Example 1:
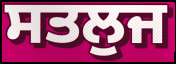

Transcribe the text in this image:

ਸਤਲੁਜ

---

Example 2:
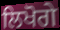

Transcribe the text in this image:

ਲਿਖੋਗੇ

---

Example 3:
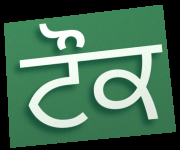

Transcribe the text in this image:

ਟੌਕ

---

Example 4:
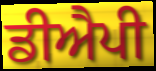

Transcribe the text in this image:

ਡੀਐਪੀ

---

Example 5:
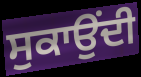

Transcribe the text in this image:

ਸੁਕਾਉਂਦੀ